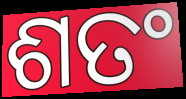
ଶତଂ